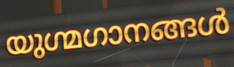
യുഗ്മഗാനങ്ങൾ